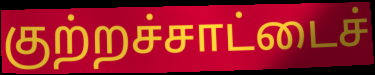
குற்றச்சாட்டைச்